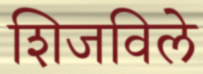
शिजविले